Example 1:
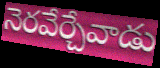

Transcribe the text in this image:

నెరవేర్చేవాడు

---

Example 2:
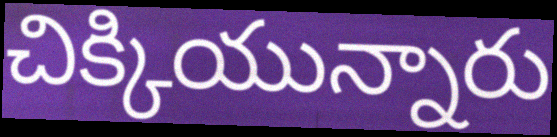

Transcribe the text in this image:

చిక్కియున్నారు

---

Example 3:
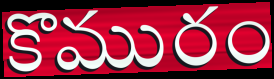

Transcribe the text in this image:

కొమురం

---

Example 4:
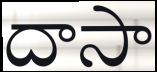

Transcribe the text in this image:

దాసా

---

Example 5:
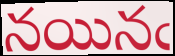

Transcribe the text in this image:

నయినఁ